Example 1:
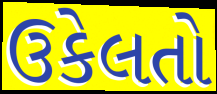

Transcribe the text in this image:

ઉકેલતો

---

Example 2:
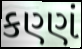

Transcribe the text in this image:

કણ્ણં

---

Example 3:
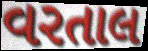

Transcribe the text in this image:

વરતાલ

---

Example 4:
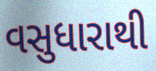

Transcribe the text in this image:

વસુધારાથી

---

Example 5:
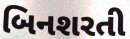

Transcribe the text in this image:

બિનશરતી